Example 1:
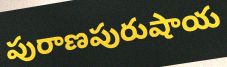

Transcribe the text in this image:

పురాణపురుషాయ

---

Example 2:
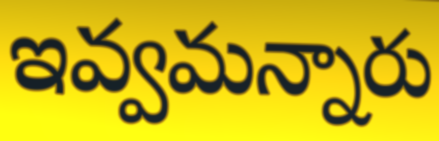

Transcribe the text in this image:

ఇవ్వమన్నారు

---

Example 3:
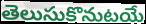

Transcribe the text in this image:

తెలుసుకొనుటయే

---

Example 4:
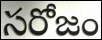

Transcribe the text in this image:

సరోజం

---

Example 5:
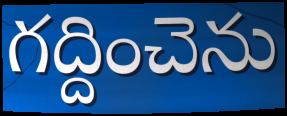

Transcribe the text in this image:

గద్దించెను